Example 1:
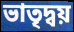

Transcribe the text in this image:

ভাতৃদ্বয়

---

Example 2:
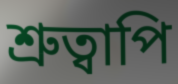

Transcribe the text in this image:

শ্রুত্বাপি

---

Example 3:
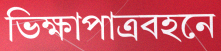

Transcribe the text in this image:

ভিক্ষাপাত্রবহনে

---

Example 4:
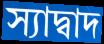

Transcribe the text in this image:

স্যাদ্বাদ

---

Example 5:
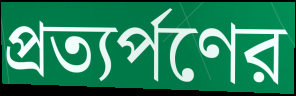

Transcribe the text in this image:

প্রত্যর্পণের